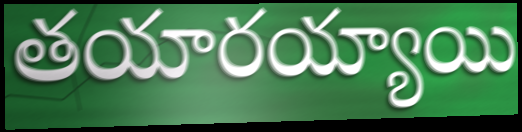
తయారయ్యాయి